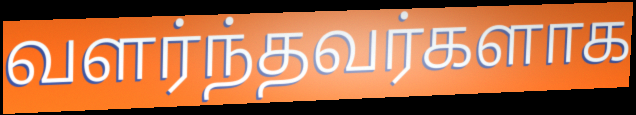
வளர்ந்தவர்களாக